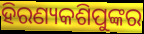
ହିରଣ୍ୟକଶିପୁଙ୍କର